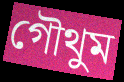
গৌথুম